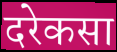
दरेकसा